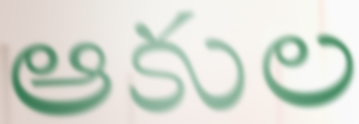
ఆకుల